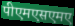
पीएमएसएमए